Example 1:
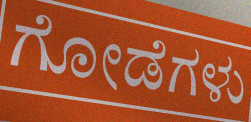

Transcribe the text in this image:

ಗೋಡೆಗಳು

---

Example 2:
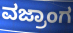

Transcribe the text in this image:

ವಜ್ರಾಂಗ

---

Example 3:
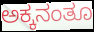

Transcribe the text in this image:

ಅಕ್ಕನಂತೂ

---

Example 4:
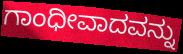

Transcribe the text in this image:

ಗಾಂಧೀವಾದವನ್ನು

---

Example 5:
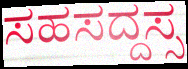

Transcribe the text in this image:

ಸಹಸದ್ದಸ್ಸ